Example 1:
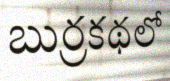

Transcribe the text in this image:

బుర్రకథలో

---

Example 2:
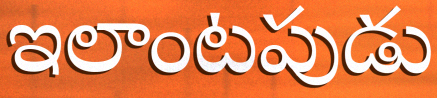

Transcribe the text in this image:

ఇలాంటపుడు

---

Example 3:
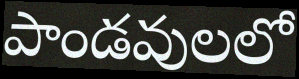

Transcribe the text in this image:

పాండవులలో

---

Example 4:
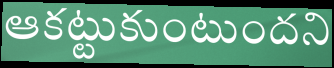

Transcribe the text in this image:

ఆకట్టుకుంటుందని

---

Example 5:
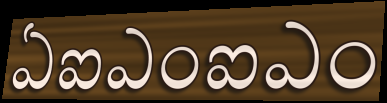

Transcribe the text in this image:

ఏఐఎంఐఎం